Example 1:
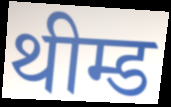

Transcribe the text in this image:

थीम्ड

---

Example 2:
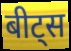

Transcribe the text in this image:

बीट्स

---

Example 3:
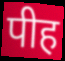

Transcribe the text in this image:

पीह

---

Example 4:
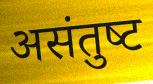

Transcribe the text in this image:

असंतुष्‍ट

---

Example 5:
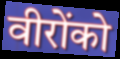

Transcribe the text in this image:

वीरोंको